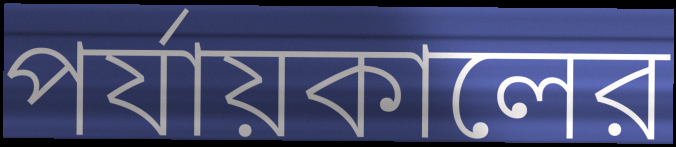
পর্যায়কালের